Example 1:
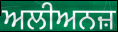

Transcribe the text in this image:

ਅਲੀਅਨਜ਼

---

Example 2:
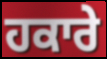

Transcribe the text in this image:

ਹਕਾਰੇ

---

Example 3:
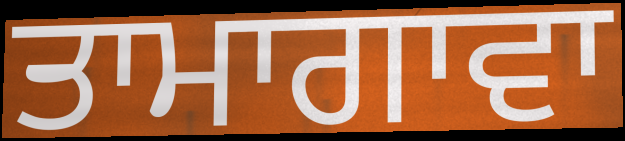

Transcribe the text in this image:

ਤਾਮਾਗਾਵਾ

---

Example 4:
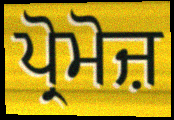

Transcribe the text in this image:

ਪ੍ਰੋਮੋਜ਼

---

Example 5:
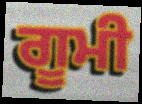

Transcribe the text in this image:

ਗੂਮੀ